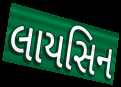
લાયસિન